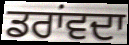
ਡਰਾਂਵਦਾ